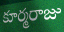
కూర్మరాజు